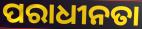
ପରାଧୀନତା